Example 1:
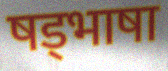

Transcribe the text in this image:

षड्भाषा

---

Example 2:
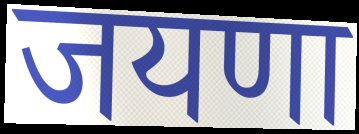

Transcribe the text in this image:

जयणा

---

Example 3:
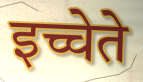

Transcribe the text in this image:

इच्चेते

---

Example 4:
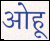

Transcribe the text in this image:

ओहू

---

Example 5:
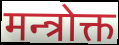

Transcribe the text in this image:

मन्त्रोक्त